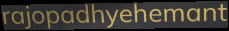
rajopadhyehemant